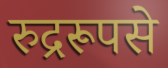
रुद्ररूपसे